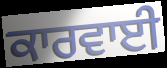
ਕਾਰਵਾਈ